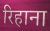
रिहाना